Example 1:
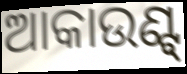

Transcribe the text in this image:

ଆକାଉଣ୍ଟ୍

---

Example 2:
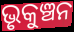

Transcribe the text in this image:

ଭୃକୁଞ୍ଚନ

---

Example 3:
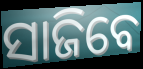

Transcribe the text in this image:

ସାଜିବେ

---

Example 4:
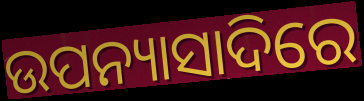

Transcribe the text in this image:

ଉପନ୍ୟାସାଦିରେ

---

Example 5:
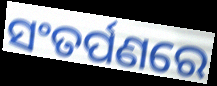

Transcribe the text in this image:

ସଂତର୍ପଣରେ